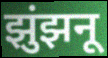
झुंझनू